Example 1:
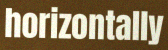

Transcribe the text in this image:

horizontally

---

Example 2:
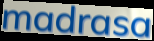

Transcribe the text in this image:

madrasa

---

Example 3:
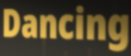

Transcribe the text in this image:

Dancing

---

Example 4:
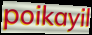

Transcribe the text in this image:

poikayil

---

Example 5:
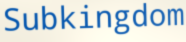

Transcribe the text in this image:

Subkingdom